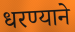
धरण्याने